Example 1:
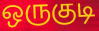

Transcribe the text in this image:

ஒருகுடி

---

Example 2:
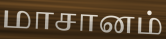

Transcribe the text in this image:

மாசானம்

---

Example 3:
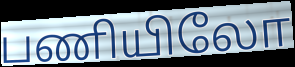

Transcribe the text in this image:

பணியிலோ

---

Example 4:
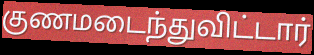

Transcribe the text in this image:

குணமடைந்துவிட்டார்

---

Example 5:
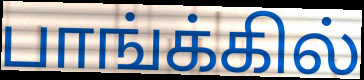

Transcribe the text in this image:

பாங்க்கில்